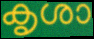
കൃശാ